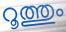
റൂത്തും